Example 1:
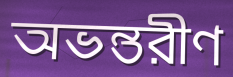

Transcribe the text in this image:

অভন্তরীণ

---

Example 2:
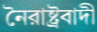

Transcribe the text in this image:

নৈরাষ্ট্রবাদী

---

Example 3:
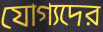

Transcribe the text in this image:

যোগ্যদের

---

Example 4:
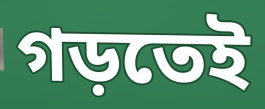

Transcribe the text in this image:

গড়তেই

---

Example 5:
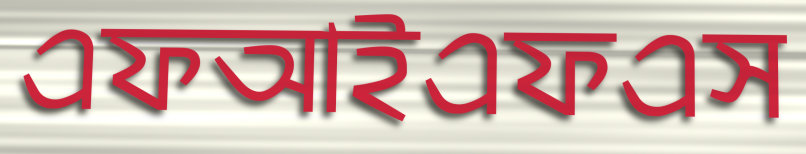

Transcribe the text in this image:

এফআইএফএস